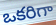
ఒకరిగా